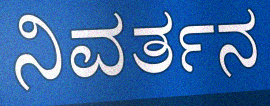
ನಿವರ್ತನ